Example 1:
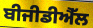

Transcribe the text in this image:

ਬੀਜੀਡੀਐੱਲ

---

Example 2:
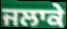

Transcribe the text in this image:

ਜਲਾਕੇ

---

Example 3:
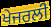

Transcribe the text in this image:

ਖੇਜਰਲੀ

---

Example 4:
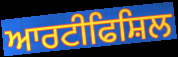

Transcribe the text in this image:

ਆਰਟੀਫਿਸ਼ਿਲ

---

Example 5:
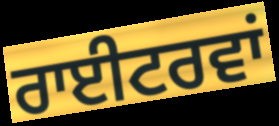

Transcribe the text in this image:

ਰਾਈਟਰਵਾਂ